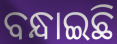
ବନ୍ଧାଇଛି